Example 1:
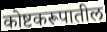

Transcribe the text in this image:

कोष्टकरूपातील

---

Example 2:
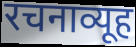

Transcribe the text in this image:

रचनाव्यूह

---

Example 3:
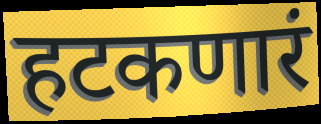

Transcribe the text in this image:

हटकणारं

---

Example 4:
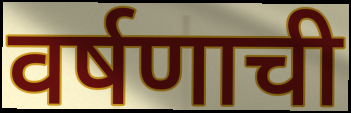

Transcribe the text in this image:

वर्षणाची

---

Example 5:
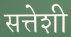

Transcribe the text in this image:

सत्तेशी